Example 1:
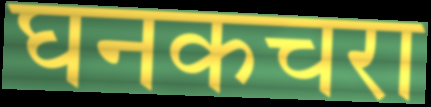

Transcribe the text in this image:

घनकचरा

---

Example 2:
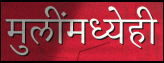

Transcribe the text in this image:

मुलींमध्येही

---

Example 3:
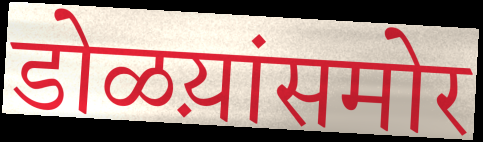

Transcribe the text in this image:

डोळय़ांसमोर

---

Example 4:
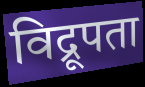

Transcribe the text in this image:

विद्रूपता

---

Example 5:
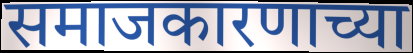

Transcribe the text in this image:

समाजकारणाच्या